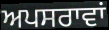
ਅਪਸਰਾਵਾਂ